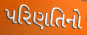
પરિણતિનો